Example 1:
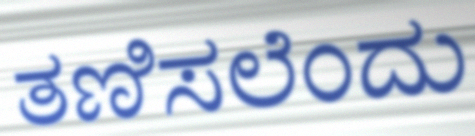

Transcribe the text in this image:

ತಣಿಸಲೆಂದು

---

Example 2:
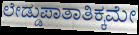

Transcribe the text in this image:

ಲೇಡ್ಡುಪಾತಾತಿಕ್ಕಮೇ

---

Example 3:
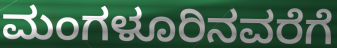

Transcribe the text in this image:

ಮಂಗಳೂರಿನವರೆಗೆ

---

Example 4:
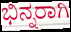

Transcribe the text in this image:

ಭಿನ್ನರಾಗಿ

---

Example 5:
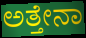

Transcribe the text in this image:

ಅತ್ತೇನಾ